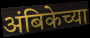
अंबिकेच्या